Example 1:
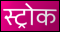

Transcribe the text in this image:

स्ट्रोक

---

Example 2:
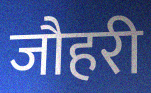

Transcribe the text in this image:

जौहरी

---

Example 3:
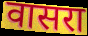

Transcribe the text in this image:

वासरा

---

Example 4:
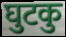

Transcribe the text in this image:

घुटकु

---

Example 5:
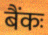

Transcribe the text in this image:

बैंकः